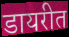
डायरीत